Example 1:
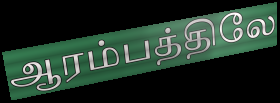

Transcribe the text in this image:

ஆரம்பத்திலே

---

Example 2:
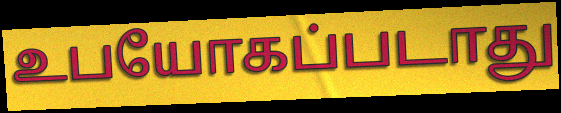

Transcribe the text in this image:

உபயோகப்படாது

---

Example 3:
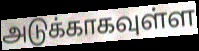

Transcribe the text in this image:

அடுக்காகவுள்ள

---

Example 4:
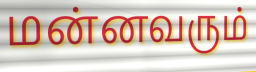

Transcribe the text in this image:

மன்னவரும்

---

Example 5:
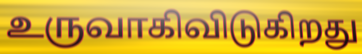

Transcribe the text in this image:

உருவாகிவிடுகிறது